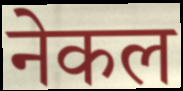
नेकल